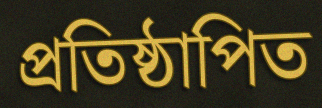
প্ৰতিষ্ঠাপিত